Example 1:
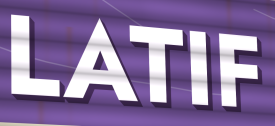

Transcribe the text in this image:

LATIF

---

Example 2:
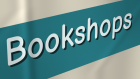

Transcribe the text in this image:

Bookshops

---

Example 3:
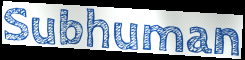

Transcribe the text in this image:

Subhuman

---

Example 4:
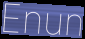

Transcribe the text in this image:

Enun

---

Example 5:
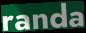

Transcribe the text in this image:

randa